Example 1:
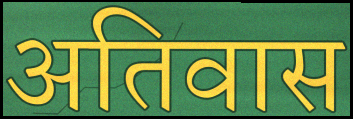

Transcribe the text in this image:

अतिवास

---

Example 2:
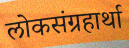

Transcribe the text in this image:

लोकसंग्रहार्था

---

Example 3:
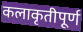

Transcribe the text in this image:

कलाकृतीपूर्ण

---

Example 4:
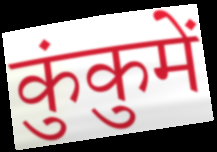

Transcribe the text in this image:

कुंकुमें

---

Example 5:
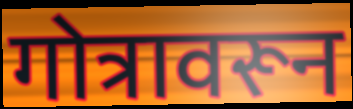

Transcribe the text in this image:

गोत्रावरून